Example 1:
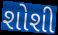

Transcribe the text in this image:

શોશી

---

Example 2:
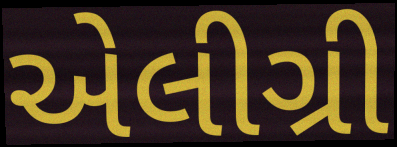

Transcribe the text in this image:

એલીગ્રી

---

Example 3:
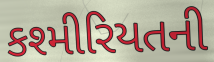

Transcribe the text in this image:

કશ્મીરિયતની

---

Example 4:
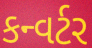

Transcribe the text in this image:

કન્વર્ટર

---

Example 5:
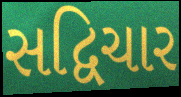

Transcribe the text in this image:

સદ્વિચાર